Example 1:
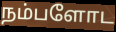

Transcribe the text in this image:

நம்பளோட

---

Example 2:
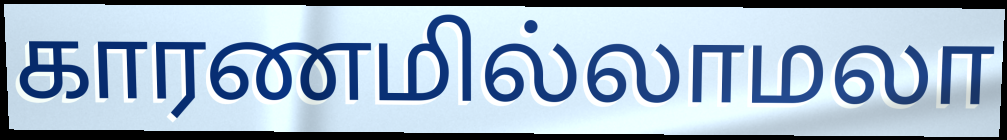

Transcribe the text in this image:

காரணமில்லாமலா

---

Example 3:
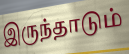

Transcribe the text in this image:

இருந்தாடும்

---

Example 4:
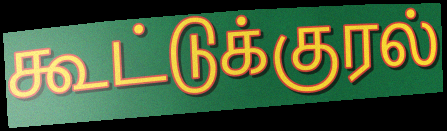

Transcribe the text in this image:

கூட்டுக்குரல்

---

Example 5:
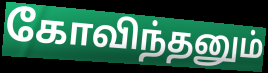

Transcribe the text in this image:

கோவிந்தனும்